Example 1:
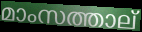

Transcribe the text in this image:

മാംസത്താല്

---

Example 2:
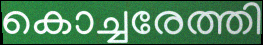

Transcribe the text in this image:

കൊച്ചരേത്തി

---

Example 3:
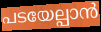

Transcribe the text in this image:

പടയേല്പാൻ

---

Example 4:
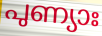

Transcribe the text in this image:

പുണ്യാഃ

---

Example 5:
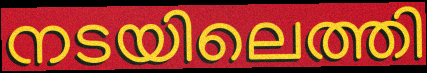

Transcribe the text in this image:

നടയിലെത്തി